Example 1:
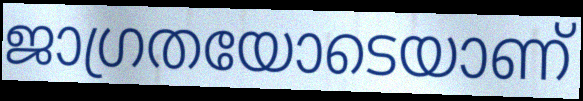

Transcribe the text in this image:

ജാഗ്രതയോടെയാണ്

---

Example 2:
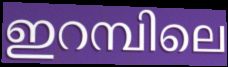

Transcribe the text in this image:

ഇറമ്പിലെ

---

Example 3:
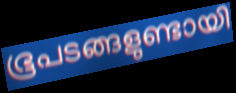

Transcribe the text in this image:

ഭൂപടങ്ങളുണ്ടായി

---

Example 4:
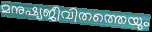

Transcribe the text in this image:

മനുഷ്യജീവിതത്തെയും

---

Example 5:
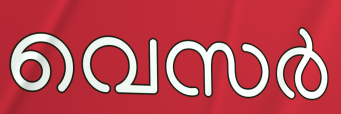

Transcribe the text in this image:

വെസർ